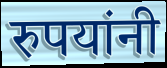
रुपयांनी